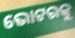
ଭୋଟରକୁ